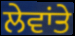
ਲੇਵਾਂਤੇ